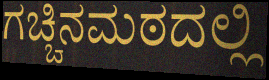
ಗಚ್ಚಿನಮಠದಲ್ಲಿ